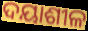
ଦୟାଶୀଳ